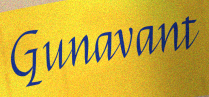
Gunavant